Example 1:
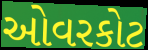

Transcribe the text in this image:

ઓવરકોટ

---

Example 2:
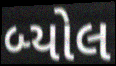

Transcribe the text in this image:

બ્યોલ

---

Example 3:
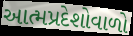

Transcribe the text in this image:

આત્મપ્રદેશોવાળો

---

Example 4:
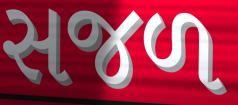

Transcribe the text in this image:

સજળ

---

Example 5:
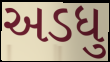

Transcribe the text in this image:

અડધુ